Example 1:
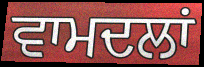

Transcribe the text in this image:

ਵਾਮਦਲਾਂ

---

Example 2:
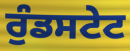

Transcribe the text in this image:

ਰੁੰਡਸਟੇਟ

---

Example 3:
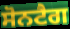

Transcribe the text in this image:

ਸੋਨਟੈਗ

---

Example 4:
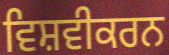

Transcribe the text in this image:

ਵਿਸ਼ਵੀਕਰਨ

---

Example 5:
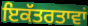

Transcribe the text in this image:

ਇਕੱਤਰਤਾਵਾਂ